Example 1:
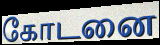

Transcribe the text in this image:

கோடனை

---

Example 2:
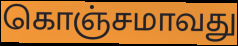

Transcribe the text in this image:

கொஞ்சமாவது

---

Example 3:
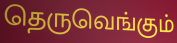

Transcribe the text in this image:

தெருவெங்கும்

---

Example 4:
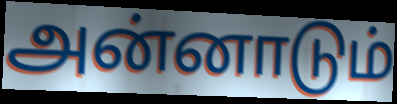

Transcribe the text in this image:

அன்னாடும்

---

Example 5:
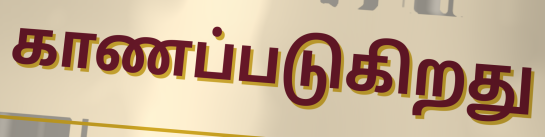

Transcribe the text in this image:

காணப்படுகிறது